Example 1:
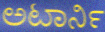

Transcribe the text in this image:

ಅಟಾರ್ನಿ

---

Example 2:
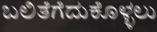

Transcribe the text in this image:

ಬಲಿತೆಗೆದುಕೊಳ್ಳಲು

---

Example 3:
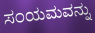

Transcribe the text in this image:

ಸಂಯಮವನ್ನು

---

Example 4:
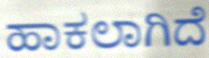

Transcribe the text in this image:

ಹಾಕಲಾಗಿದೆ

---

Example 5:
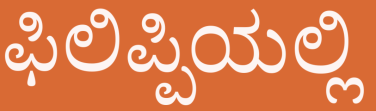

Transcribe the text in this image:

ಫಿಲಿಪ್ಪಿಯಲ್ಲಿ